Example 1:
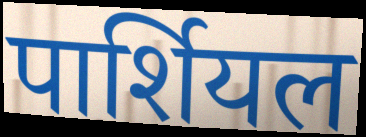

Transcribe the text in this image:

पार्शियल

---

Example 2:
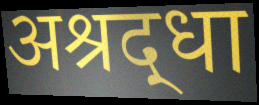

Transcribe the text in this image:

अश्रद्धा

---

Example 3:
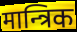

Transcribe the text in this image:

मान्त्रिक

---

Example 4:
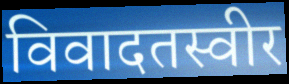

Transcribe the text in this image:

विवादतस्वीर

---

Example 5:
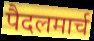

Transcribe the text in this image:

पैदलमार्च